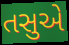
તસુએ